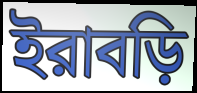
ইরাবড়ি